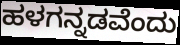
ಹಳಗನ್ನಡವೆಂದು